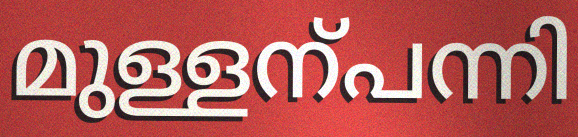
മുള്ളന്പന്നി